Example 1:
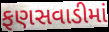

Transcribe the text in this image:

ફણસવાડીમાં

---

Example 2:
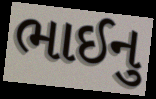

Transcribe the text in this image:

ભાઈનુ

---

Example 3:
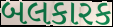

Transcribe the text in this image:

બલકારક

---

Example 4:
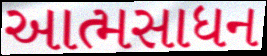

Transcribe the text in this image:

આત્મસાધન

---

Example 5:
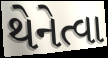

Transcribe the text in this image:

થેનેત્વા